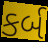
કર્બ